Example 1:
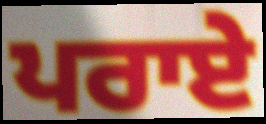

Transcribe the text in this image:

ਪਰਾਏ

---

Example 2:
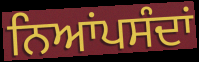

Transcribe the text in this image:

ਨਿਆਂਪਸੰਦਾਂ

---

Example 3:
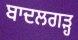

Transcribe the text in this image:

ਬਾਦਲਗੜ੍ਹ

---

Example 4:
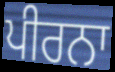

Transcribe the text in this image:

ਪੀਰਨਾ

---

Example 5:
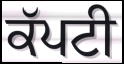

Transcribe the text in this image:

ਕੱਪਟੀ